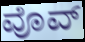
ವೊವ್